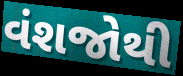
વંશજોથી